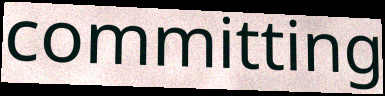
committing